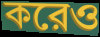
করেও